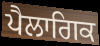
ਪੈਲਾਗਿਕ